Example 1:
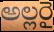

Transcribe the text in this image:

అల్లరై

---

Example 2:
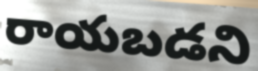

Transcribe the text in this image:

రాయబడని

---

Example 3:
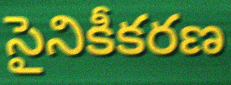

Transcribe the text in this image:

సైనికీకరణ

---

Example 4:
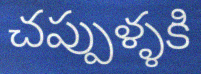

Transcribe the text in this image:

చప్పుళ్ళకి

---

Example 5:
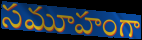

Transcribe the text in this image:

సమూహంగా